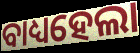
ବାଧ୍ୟହେଲା